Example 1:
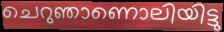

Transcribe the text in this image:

ചെറുഞാണൊലിയിട്ടു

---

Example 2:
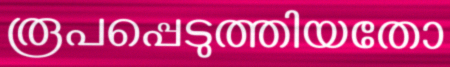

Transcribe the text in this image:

രൂപപ്പെടുത്തിയതോ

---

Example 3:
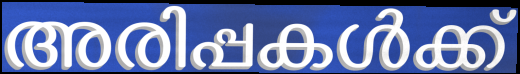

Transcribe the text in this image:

അരിപ്പകൾക്ക്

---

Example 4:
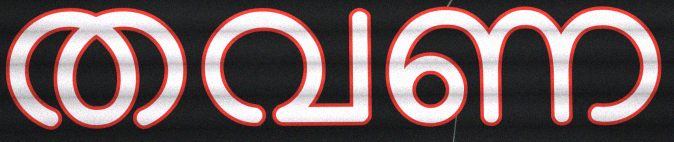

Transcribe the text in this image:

തവണ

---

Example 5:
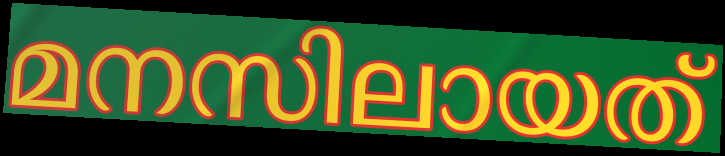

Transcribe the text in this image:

മനസിലായത്